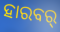
ହାରବର୍